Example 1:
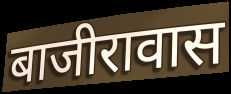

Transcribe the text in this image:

बाजीरावास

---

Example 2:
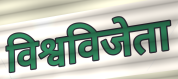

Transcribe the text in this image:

विश्वविजेता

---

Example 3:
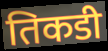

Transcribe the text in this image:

तिकडी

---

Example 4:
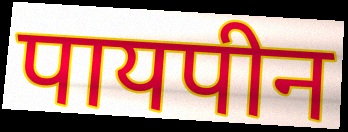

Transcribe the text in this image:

पायपीन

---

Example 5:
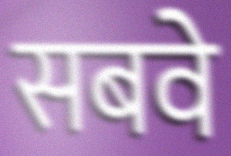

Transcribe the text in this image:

सबवे